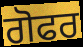
ਗੋਫਰ